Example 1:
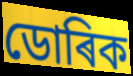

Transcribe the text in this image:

ডোৰিক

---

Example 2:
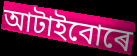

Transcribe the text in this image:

আটাইবোৰে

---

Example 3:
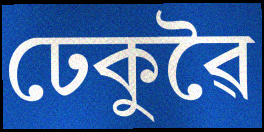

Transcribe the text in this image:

ঢেকুৱৈ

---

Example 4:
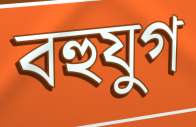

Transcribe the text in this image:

বহুযুগ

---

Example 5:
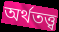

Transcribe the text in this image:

অৰ্থতত্ত্ব